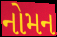
નોમન